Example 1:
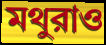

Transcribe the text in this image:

মথুরাও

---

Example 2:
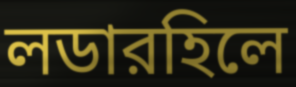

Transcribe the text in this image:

লডারহিলে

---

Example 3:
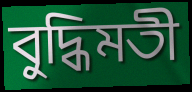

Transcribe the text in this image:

বুদ্ধিমতী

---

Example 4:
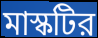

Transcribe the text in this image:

মাস্কটির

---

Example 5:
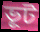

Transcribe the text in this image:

ভূট